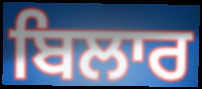
ਬਿਲਾਰ